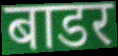
बाडर